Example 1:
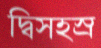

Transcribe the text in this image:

দ্বিসহস্র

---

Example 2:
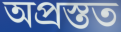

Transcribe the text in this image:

অপ্রস্তত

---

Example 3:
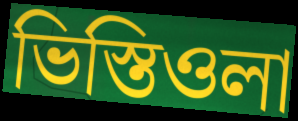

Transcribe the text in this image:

ভিস্তিওলা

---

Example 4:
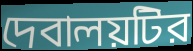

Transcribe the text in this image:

দেবালয়টির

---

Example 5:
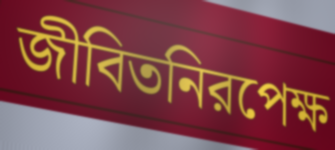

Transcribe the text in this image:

জীবিতনিরপেক্ষ